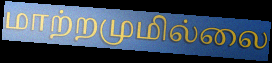
மாற்றமுமில்லை